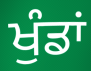
ਖੁੰਡਾਂ